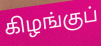
கிழங்குப்